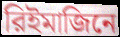
রিইমাজিনে